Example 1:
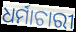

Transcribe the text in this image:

ଧର୍ମାଚାରୀ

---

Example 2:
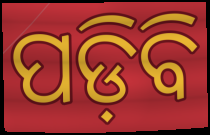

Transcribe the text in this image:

ପଡ଼ିବି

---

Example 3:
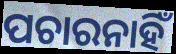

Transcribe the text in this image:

ପଚାରନାହିଁ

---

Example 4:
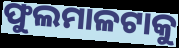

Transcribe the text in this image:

ଫୁଲମାଳଟାକୁ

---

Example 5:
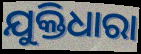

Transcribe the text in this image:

ଯୁକ୍ତିଧାରା